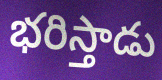
భరిస్తాడు